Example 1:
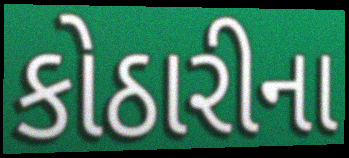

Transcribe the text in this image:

કોઠારીના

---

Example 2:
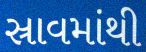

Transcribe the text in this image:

સ્રાવમાંથી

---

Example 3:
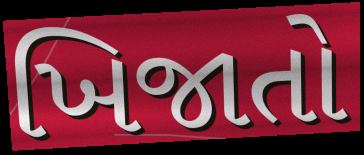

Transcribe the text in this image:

ખિજાતો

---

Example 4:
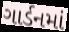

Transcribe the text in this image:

ગાર્ડનમાં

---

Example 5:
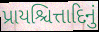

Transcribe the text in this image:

પ્રાયશ્ચિત્તાદિનું